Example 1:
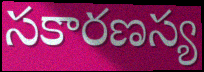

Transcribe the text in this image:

సకారణస్య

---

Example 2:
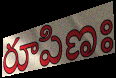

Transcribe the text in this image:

రూపిణః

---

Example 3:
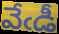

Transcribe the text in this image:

వేఁడీ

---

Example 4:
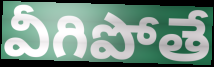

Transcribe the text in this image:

వీగిపోతే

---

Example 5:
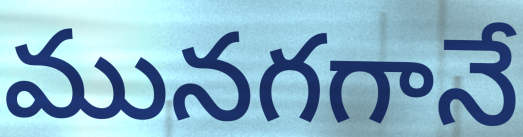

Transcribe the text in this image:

మునగగానే